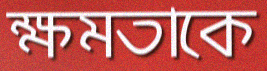
ক্ষমতাকে